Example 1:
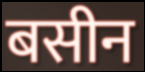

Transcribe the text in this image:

बसीन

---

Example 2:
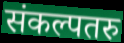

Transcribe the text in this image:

संकल्पतरु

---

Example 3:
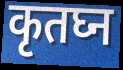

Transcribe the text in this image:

कृतघ्न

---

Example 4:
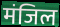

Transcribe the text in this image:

मंजिल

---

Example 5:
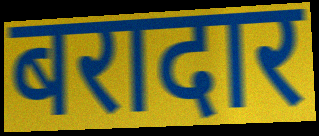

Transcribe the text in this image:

बरादार